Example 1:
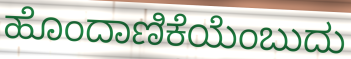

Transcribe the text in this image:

ಹೊಂದಾಣಿಕೆಯೆಂಬುದು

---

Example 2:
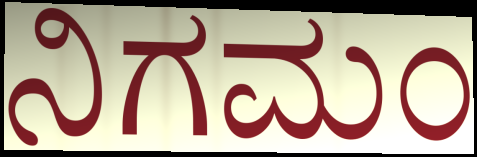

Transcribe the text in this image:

ನಿಗಮಂ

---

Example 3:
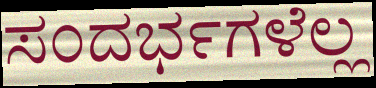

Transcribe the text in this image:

ಸಂದರ್ಭಗಳೆಲ್ಲ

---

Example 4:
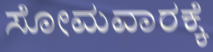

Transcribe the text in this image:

ಸೋಮವಾರಕ್ಕೆ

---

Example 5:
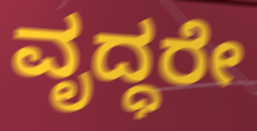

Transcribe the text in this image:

ವೃದ್ಧರೇ